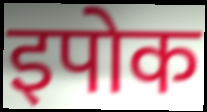
इपोक